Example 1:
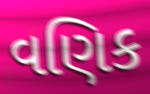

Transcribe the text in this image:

વણિક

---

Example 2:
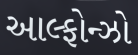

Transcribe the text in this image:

આલ્ફોન્ઝો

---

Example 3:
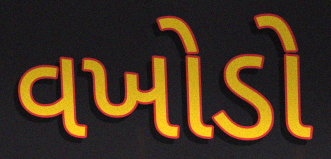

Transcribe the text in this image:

વખોડો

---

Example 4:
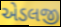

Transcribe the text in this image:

એડલજી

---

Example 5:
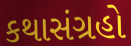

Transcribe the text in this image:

કથાસંગ્રહો